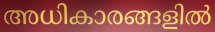
അധികാരങ്ങളിൽ